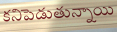
కనిపెడుతున్నాయి